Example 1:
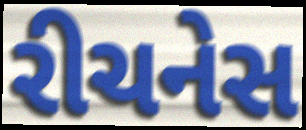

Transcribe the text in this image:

રીચનેસ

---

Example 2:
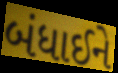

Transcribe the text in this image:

બંધાઈને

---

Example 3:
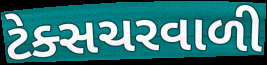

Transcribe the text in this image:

ટેક્સચરવાળી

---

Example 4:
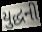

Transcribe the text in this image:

યુદ્ધની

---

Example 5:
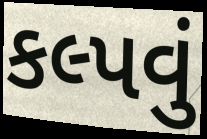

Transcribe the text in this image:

કલ્પવું